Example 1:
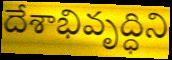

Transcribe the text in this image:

దేశాభివృద్ధిని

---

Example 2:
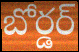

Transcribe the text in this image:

బోర్డర్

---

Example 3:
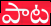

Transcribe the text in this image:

పాట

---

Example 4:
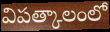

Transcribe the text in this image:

విపత్కాలంలో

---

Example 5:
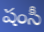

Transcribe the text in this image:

షంసీ